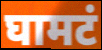
घामटं